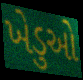
ખેડુઓ